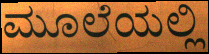
ಮೂಲೆಯಲ್ಲಿ